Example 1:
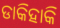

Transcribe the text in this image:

ଡାକିହାକି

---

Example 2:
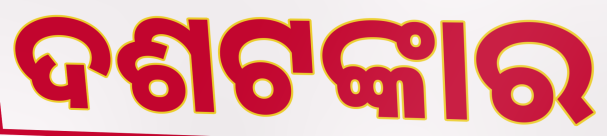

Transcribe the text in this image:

ଦଶଟଙ୍କାର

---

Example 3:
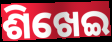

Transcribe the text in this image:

ଶିଖେଇ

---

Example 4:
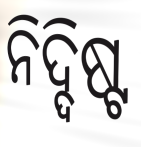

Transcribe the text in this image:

ନିଦ୍ଦିଷ୍ଟ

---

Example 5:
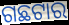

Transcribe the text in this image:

ଗଛଟାର